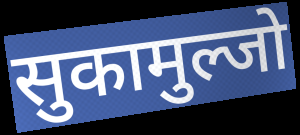
सुकामुल्जो